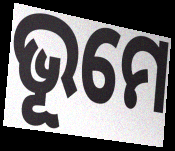
ଭୂମେ